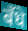
बँधे